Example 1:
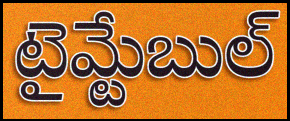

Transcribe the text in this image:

టైమ్టేబుల్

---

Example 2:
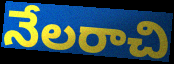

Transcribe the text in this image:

నేలరాచి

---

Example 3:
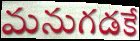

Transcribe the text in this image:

మనుగడకే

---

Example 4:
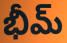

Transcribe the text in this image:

భీమ్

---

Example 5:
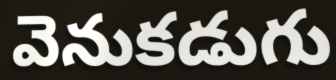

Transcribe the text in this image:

వెనుకడుగు